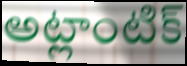
అట్లాంటిక్